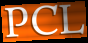
PCL